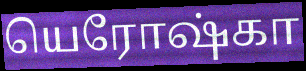
யெரோஷ்கா